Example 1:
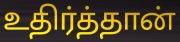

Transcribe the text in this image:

உதிர்த்தான்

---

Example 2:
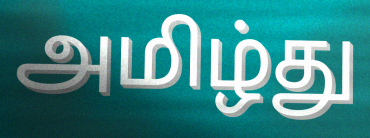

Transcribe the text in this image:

அமிழ்து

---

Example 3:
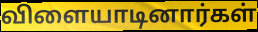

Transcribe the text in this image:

விளையாடினார்கள்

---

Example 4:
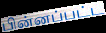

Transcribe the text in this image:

பின்னப்பட்ட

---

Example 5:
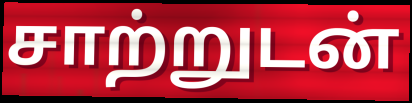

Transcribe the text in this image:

சாற்றுடன்